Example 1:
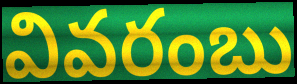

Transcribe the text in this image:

వివరంబు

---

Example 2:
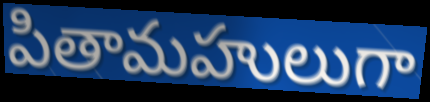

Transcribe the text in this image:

పితామహులుగా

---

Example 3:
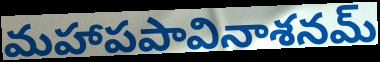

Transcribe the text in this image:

మహాపపావినాశనమ్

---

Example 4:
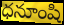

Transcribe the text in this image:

ధనూంషి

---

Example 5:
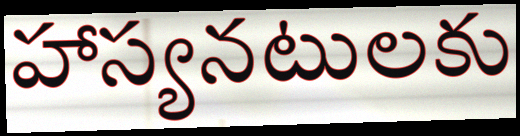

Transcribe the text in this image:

హాస్యనటులకు